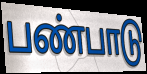
பண்பாடு